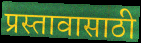
प्रस्तावासाठी